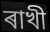
ৰাখী